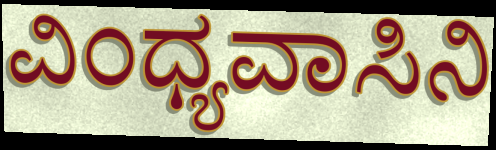
ವಿಂಧ್ಯವಾಸಿನಿ